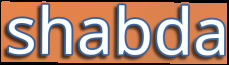
shabda